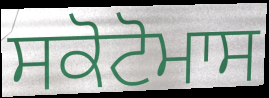
ਸਕੋਟੋਮਾਸ